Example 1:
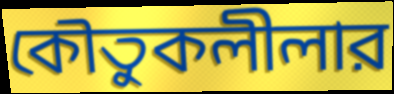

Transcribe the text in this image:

কৌতুকলীলার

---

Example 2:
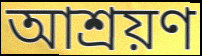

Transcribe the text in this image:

আশ্রয়ণ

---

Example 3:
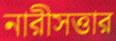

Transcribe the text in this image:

নারীসত্তার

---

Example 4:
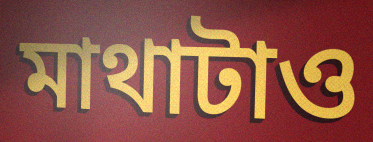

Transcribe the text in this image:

মাথাটাও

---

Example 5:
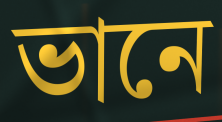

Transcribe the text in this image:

ভানে